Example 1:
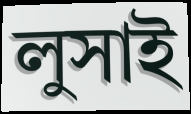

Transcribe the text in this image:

লুসাই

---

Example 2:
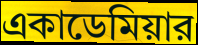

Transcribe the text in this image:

একাডেমিয়ার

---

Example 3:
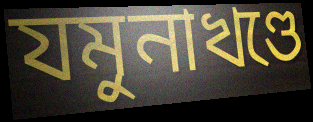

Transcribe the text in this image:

যমুনাখণ্ডে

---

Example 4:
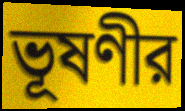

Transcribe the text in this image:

ভূষণীর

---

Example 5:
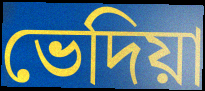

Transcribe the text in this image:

ভেদিয়া